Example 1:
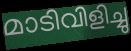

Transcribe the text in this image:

മാടിവിളിച്ചു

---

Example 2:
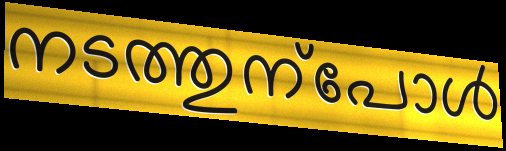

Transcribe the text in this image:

നടത്തുന്പോൾ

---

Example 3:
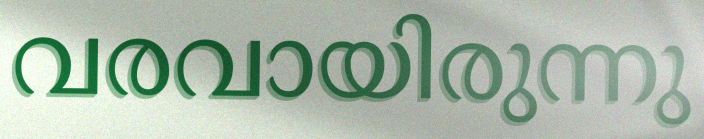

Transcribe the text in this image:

വരവായിരുന്നു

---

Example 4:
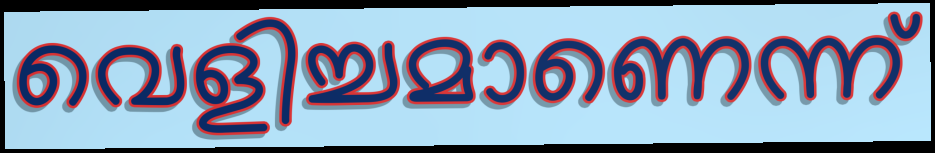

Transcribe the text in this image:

വെളിച്ചമാണെന്ന്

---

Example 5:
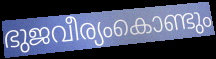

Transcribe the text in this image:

ഭുജവീര്യംകൊണ്ടും